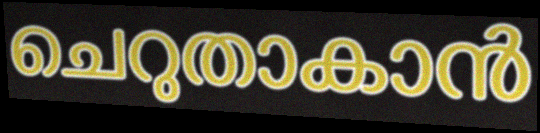
ചെറുതാകാൻ